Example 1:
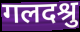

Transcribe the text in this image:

गलदश्रु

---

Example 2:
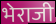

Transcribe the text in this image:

भेराजी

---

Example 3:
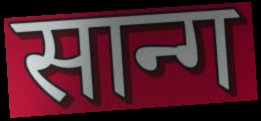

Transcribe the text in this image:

सान्ग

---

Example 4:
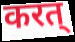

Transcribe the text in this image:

करत्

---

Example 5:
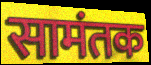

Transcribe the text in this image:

सामंतक